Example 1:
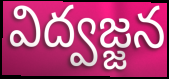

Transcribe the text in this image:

విద్వజ్జన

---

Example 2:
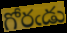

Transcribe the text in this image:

గోరఁడు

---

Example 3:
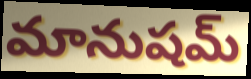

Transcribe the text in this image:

మానుషమ్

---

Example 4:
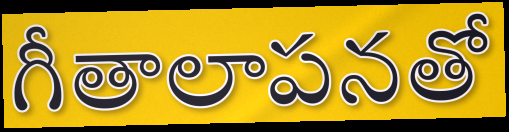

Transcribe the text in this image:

గీతాలాపనతో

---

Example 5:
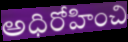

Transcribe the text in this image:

అధిరోహించి